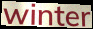
winter